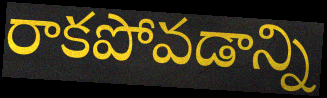
రాకపోవడాన్ని